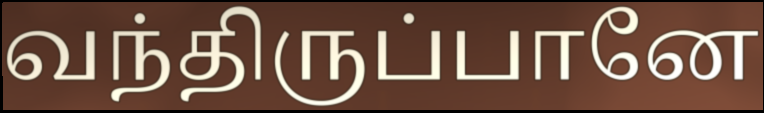
வந்திருப்பானே